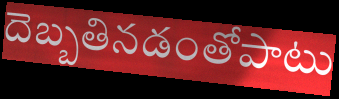
దెబ్బతినడంతోపాటు